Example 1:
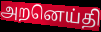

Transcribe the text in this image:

அறனெய்தி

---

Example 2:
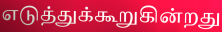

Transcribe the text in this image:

எடுத்துக்கூறுகின்றது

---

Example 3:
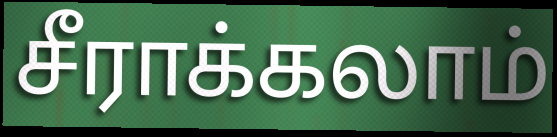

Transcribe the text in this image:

சீராக்கலாம்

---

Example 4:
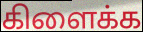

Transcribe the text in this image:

கிளைக்க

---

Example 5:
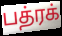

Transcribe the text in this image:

பத்ரக்